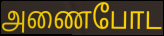
அணைபோட